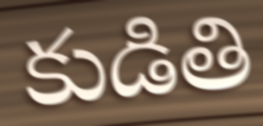
కుడితి